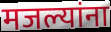
मजल्यांना